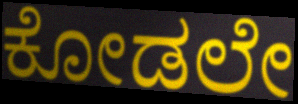
ಕೋಡಲೇ